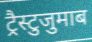
ट्रैस्टुजुमाब